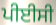
ਪੀਈਸੀ